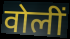
वोलीं